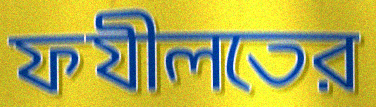
ফযীলতের